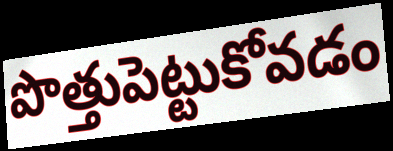
పొత్తుపెట్టుకోవడం